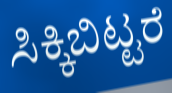
ಸಿಕ್ಕಿಬಿಟ್ಟರೆ